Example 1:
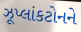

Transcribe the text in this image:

ઝૂપ્લાંકટોનને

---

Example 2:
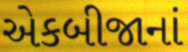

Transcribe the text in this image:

એકબીજાનાં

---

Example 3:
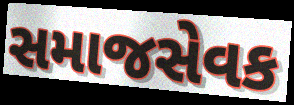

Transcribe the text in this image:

સમાજસેવક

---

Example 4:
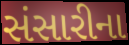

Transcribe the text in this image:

સંસારીના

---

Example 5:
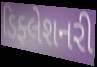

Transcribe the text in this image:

ડિફ્લેશનરી